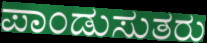
ಪಾಂಡುಸುತರು